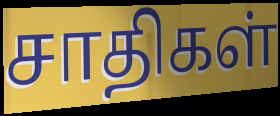
சாதிகள்